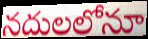
నదులలోనూ